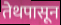
तेथपासून